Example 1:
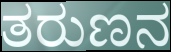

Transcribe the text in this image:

ತರುಣನ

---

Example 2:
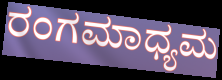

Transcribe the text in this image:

ರಂಗಮಾಧ್ಯಮ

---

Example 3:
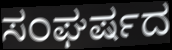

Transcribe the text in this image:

ಸಂಘರ್ಷದ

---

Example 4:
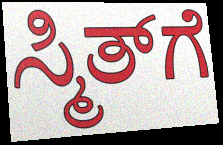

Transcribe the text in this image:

ಸ್ಮಿತ್‌ಗೆ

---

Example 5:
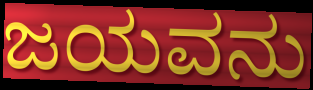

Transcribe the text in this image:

ಜಯವನು